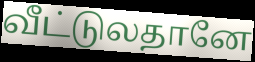
வீட்டுலதானே